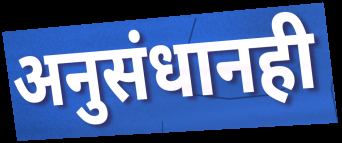
अनुसंधानही